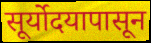
सूर्योदयापासून